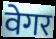
वेगर